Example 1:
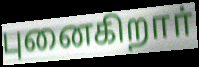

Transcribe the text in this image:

புனைகிறார்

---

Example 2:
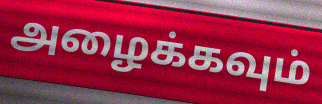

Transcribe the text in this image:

அழைக்கவும்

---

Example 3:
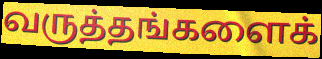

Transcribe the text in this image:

வருத்தங்களைக்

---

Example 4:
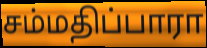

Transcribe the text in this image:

சம்மதிப்பாரா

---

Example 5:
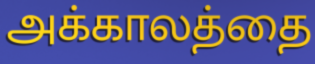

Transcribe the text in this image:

அக்காலத்தை